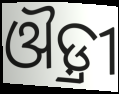
ଔଡ଼୍ରୀ